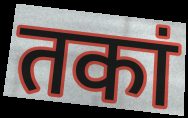
तकां